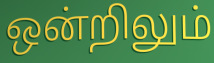
ஒன்றிலும்